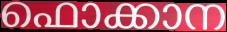
ഫൊക്കാന